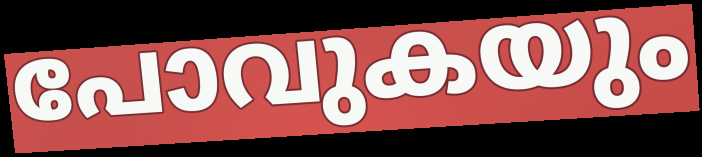
പോവുകയും